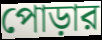
পোড়ার